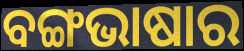
ବଙ୍ଗଭାଷାର